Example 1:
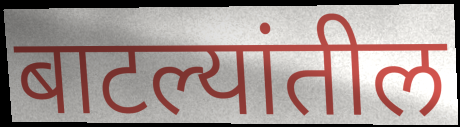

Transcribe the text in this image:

बाटल्यांतील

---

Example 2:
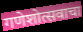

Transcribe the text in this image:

गणेशोत्सवाचा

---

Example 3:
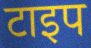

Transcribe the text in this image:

टाइप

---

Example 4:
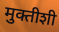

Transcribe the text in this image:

मुक्तीशी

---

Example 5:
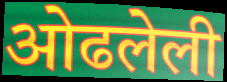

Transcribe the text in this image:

ओढलेली